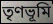
তৃণভূমি